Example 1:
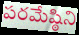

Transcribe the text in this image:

పరమేష్ఠిని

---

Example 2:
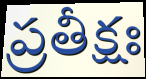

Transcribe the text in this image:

ప్రతీక్షః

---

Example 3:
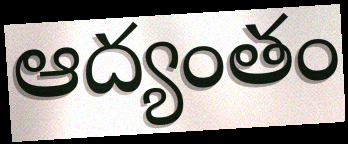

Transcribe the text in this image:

ఆద్యంతం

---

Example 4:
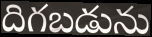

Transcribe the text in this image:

దిగబడును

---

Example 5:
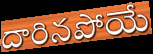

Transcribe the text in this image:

దారినపోయే